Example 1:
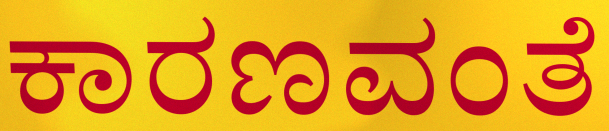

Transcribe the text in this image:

ಕಾರಣವಂತೆ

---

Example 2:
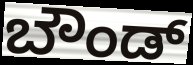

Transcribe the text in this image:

ಬೌಂಡ್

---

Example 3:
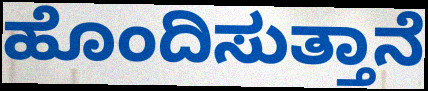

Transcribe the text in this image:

ಹೊಂದಿಸುತ್ತಾನೆ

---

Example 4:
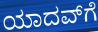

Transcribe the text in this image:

ಯಾದವ್‌ಗೆ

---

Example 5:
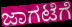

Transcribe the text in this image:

ಜಾಗಟೆಗೆ